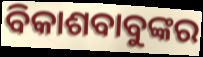
ବିକାଶବାବୁଙ୍କର